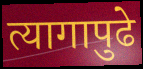
त्यागापुढे